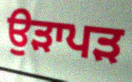
ਉੜਾਪੜ